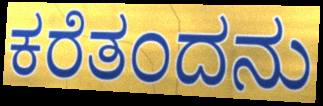
ಕರೆತಂದನು